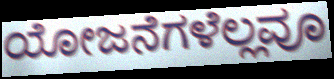
ಯೋಜನೆಗಳೆಲ್ಲವೂ